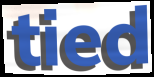
tied